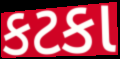
કટકા